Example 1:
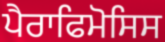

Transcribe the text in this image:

ਪੈਰਾਫਿਮੋਸਿਸ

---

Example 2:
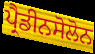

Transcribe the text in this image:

ਪ੍ਰੈਡੀਨਸੋਲੋਨ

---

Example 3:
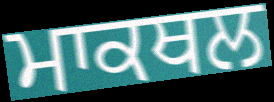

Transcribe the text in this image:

ਮਾਕਥਲ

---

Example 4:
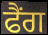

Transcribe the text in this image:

ਫੈਂਗ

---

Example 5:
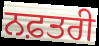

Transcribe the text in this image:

ਨਫ਼ਤਰੀ